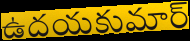
ఉదయకుమార్